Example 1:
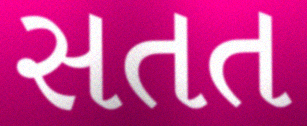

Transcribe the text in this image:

સતત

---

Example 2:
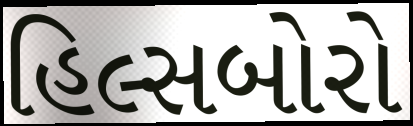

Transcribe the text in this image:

હિલ્સબોરો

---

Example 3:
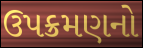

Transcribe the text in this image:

ઉપક્રમણનો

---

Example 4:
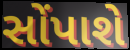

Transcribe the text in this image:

સોંપાશે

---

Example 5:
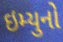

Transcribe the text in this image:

ઇમ્યુનો